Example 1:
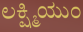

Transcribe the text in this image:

ಲಕ್ಷ್ಮಿಯುಂ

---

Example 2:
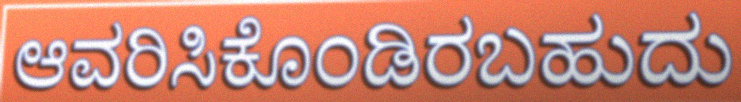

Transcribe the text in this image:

ಆವರಿಸಿಕೊಂಡಿರಬಹುದು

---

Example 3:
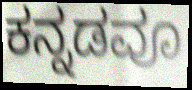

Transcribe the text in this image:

ಕನ್ನಡವೂ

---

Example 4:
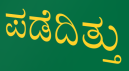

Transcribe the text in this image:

ಪಡೆದಿತ್ತು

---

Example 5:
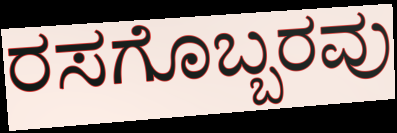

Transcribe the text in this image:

ರಸಗೊಬ್ಬರವು